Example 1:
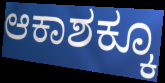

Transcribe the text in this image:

ಆಕಾಶಕ್ಕೂ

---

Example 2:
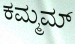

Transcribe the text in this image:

ಕಮ್ಮಮ್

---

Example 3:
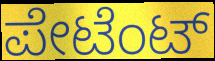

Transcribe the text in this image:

ಪೇಟೆಂಟ್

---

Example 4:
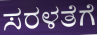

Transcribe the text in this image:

ಸರಳತೆಗೆ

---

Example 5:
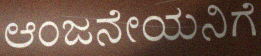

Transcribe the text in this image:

ಆಂಜನೇಯನಿಗೆ